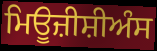
ਮਿਊਜ਼ੀਸ਼ੀਅੰਸ